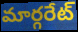
మార్గరేట్